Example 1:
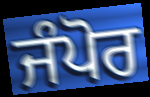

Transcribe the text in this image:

ਜੰਪੋਰ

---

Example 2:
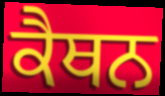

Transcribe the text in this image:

ਕੈਥਨ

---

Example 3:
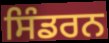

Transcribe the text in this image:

ਸਿੰਡਰਨ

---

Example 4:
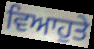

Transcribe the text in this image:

ਵਿਆਹੁਤੇ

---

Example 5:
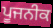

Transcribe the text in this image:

ਪੂਜਨੀਕ